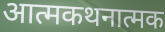
आत्मकथनात्मक